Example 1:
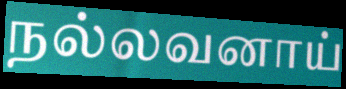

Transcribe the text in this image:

நல்லவனாய்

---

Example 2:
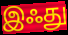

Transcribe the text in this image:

இஃது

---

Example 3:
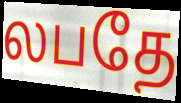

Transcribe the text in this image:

லபதே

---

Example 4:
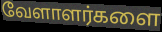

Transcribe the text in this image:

வேளாளர்களை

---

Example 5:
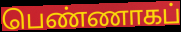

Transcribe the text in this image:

பெண்ணாகப்